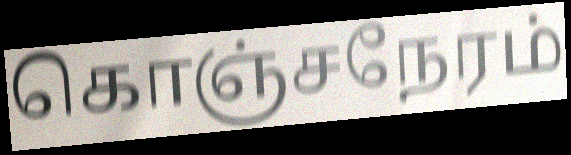
கொஞ்சநேரம்